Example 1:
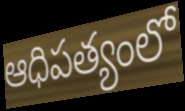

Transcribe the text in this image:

ఆధిపత్యంలో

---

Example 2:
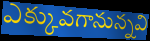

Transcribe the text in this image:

ఎక్కువగానున్నవి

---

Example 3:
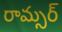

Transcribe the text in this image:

రామ్సర్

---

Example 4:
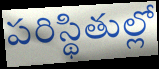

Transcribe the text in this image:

పరిస్థితుల్లో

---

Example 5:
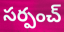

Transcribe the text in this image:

సర్పంచ్